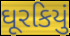
ઘૂરકિયું